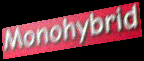
Monohybrid